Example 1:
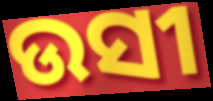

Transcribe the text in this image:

ଉସୀ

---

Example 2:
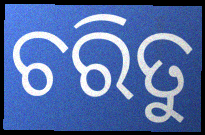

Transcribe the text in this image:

ଚରିତୁ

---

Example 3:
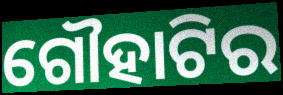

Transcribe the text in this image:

ଗୌହାଟିର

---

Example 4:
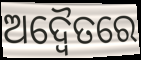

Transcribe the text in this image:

ଅଦ୍ୱୈତରେ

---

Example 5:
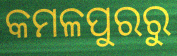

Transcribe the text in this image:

କମଳପୁରରୁ